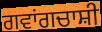
ਗਵਾਂਗਚਾਸ਼ੀ